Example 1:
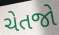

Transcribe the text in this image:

ચેતજો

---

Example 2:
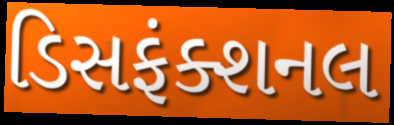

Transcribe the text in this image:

ડિસફંક્શનલ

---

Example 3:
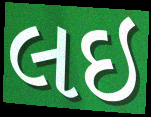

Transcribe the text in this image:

લઇ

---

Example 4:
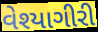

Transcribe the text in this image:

વેશ્યાગીરી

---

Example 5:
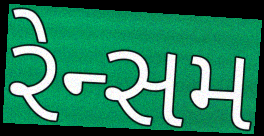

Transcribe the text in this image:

રેન્સમ